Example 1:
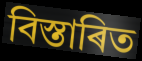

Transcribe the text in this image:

বিস্তাৰিত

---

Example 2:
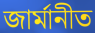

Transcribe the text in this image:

জাৰ্মানীত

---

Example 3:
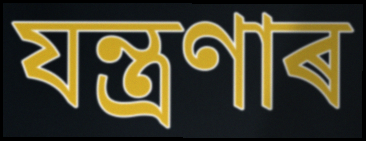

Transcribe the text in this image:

যন্ত্ৰণাৰ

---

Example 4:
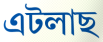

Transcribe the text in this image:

এটলাছ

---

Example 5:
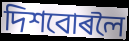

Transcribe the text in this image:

দিশবোৰলৈ